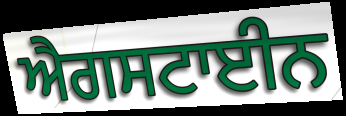
ਐਗਸਟਾਈਨ